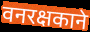
वनरक्षकाने